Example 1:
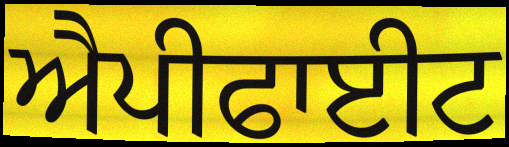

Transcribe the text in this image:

ਐਪੀਫਾਈਟ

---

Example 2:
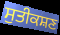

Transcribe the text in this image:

ਸੁਤੀਕਸ਼ਣ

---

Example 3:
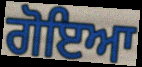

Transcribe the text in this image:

ਗੋਇਆ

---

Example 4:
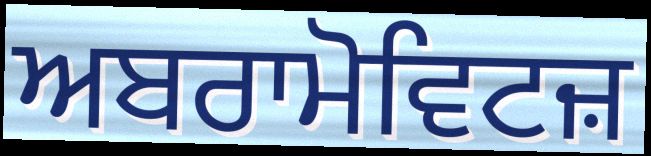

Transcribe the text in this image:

ਅਬਰਾਮੋਵਿਟਜ਼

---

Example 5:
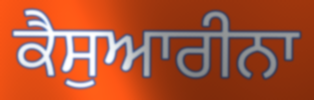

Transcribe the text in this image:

ਕੈਸੁਆਰੀਨਾ